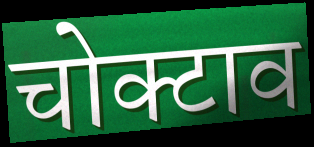
चोक्टाव